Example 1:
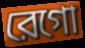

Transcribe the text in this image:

রেগো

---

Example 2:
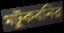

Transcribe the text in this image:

মটুকবনির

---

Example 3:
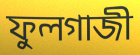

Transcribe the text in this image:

ফুলগাজী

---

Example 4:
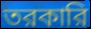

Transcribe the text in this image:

তরকারি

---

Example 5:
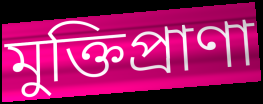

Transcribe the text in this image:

মুক্তিপ্রাণা